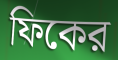
ফিকের